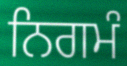
ਨਿਗਮੰ